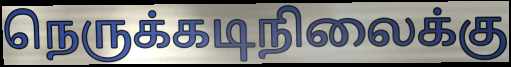
நெருக்கடிநிலைக்கு